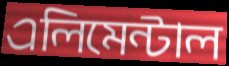
এলিমেন্টাল